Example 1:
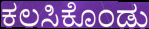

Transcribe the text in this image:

ಕಲಸಿಕೊಂಡು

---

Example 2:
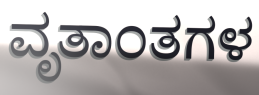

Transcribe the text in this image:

ವೃತಾಂತಗಳ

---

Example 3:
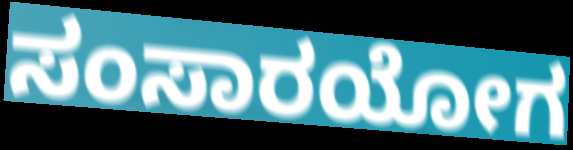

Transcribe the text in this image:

ಸಂಸಾರಯೋಗ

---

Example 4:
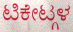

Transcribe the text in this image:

ಟಿಕೇಟ್ಗಳ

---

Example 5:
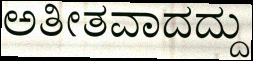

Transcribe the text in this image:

ಅತೀತವಾದದ್ದು